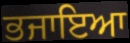
ਭਜਾਇਆ